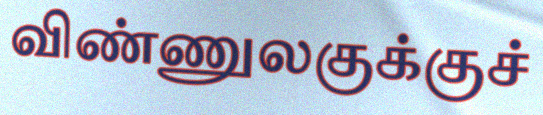
விண்ணுலகுக்குச்